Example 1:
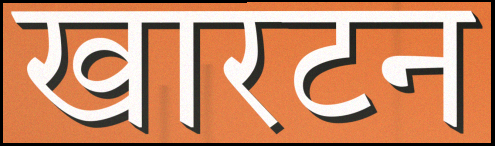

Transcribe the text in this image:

खारटन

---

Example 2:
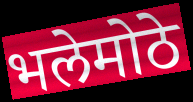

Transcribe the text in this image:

भलेमोठे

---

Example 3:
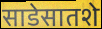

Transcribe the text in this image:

साडेसातशे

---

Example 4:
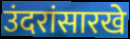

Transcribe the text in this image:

उंदरांसारखे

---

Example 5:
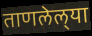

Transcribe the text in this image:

ताणलेल्या